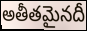
అతీతమైనదీ